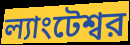
ল্যাংটেশ্বর